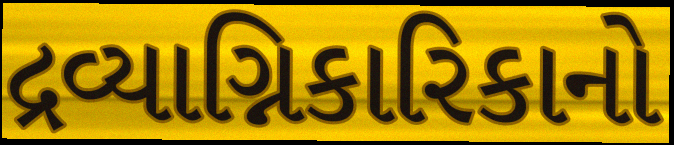
દ્રવ્યાગ્નિકારિકાનો